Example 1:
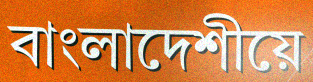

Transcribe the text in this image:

বাংলাদেশীয়ে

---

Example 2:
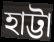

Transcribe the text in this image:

হাট্টা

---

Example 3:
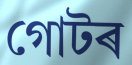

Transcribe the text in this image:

গোটৰ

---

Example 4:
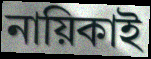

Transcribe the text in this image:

নায়িকাই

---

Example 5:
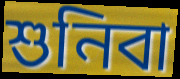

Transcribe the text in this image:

শুনিবা